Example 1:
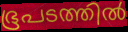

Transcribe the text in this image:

ഭൂപടത്തിൽ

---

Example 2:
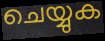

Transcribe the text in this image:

ചെയ്യുക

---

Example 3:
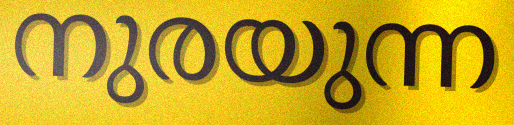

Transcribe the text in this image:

നുരയുന്ന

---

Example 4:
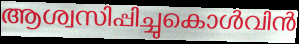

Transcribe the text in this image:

ആശ്വസിപ്പിച്ചുകൊൾവിൻ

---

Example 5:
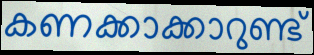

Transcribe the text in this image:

കണക്കാക്കാറുണ്ട്